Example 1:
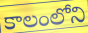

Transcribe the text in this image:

కాలంలోని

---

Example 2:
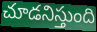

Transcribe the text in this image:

చూడనిస్తుంది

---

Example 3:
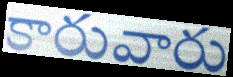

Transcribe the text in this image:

కారువారు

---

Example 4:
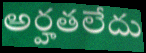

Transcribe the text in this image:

అర్హతలేదు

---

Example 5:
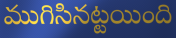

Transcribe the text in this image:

ముగిసినట్టయింది